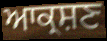
ਆਕ੍ਰਸ਼ਣ